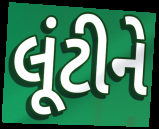
લૂંટીને